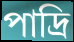
পাদ্রি